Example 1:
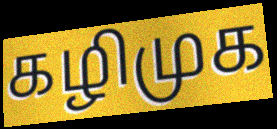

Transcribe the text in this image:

கழிமுக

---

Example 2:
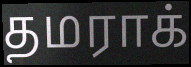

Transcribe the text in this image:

தமராக்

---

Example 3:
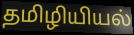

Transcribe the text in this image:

தமிழியியல்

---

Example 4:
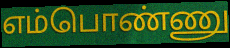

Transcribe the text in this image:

எம்பொண்ணு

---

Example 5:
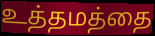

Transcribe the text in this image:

உத்தமத்தை